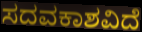
ಸದವಕಾಶವಿದೆ